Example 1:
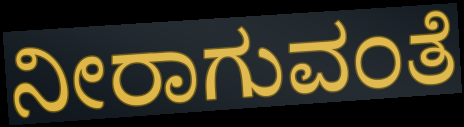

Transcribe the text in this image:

ನೀರಾಗುವಂತೆ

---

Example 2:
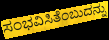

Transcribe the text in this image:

ಸಂಭವಿಸಿತೆಂಬುದನ್ನು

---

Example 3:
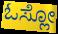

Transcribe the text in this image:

ಓಸ್ಲೋ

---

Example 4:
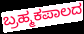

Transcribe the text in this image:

ಬ್ರಹ್ಮಕಪಾಲದ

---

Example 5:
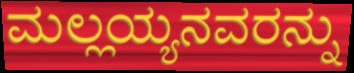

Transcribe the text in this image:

ಮಲ್ಲಯ್ಯನವರನ್ನು